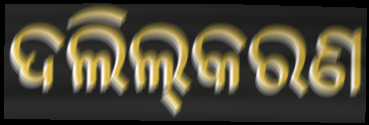
ଦଲିଲ୍‌କରଣ